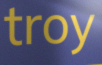
troy